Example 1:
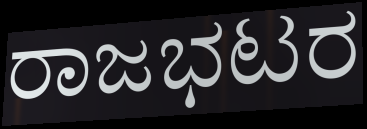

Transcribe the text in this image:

ರಾಜಭಟರ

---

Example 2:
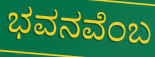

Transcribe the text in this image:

ಭವನವೆಂಬ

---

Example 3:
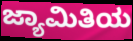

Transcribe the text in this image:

ಜ್ಯಾಮಿತಿಯ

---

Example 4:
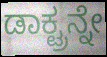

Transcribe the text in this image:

ಡಾಕ್ಟ್ರನ್ನೇ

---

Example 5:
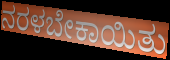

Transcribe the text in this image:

ನರಳಬೇಕಾಯಿತು